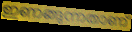
ഇണങ്ങുന്നതാണ്